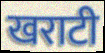
खराटी